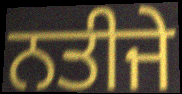
ਨਤੀਜੇ